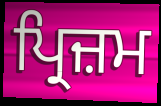
ਪ੍ਰਿਜ਼ਮ